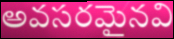
అవసరమైనవి